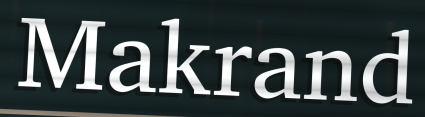
Makrand